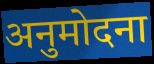
अनुमोदना